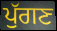
ਪੁੱਗਣ